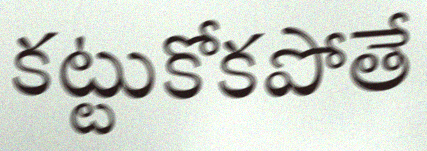
కట్టుకోకపోతే